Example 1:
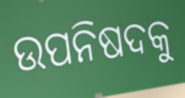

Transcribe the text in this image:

ଉପନିଷଦକୁ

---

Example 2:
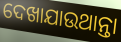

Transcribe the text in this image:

ଦେଖାଯାଉଥାନ୍ତା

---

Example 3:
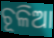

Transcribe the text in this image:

ଚୂଳିଆ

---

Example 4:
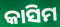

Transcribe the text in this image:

କାସିମ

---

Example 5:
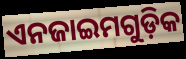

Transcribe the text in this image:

ଏନଜାଇମଗୁଡ଼ିକ